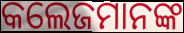
କଲେଜମାନଙ୍କ